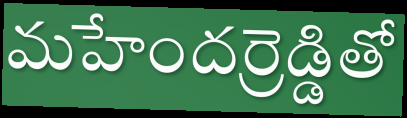
మహేందర్రెడ్డితో